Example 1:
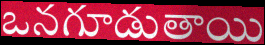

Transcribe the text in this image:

ఒనగూడుతాయి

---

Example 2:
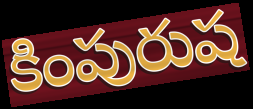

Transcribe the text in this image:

కింపురుష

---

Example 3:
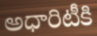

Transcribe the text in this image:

అధారిటీకి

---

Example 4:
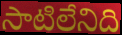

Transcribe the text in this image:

సాటిలేనిది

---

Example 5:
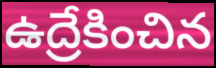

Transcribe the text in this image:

ఉద్రేకించిన